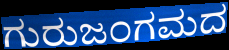
ಗುರುಜಂಗಮದ